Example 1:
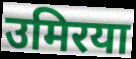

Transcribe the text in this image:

उमिरया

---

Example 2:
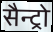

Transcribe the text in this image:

सैन्ट्रो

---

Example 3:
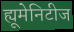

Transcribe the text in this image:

ह्यूमेनिटीज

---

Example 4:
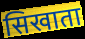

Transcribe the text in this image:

सिखाता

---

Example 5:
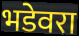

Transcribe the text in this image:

भडेवरा